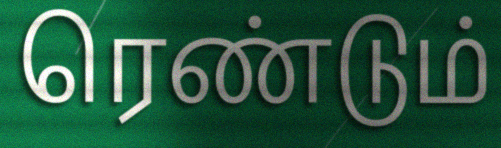
ரெண்டும்